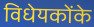
विधेयकोंके